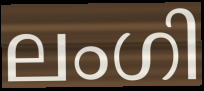
ലംഗി